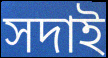
সদাই